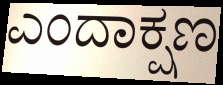
ಎಂದಾಕ್ಷಣ